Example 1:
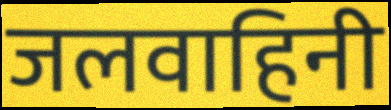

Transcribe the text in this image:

जलवाहिनी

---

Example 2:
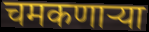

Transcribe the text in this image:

चमकणाऱ्या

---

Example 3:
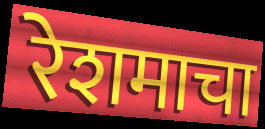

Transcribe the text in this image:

रेशमाचा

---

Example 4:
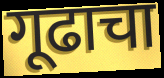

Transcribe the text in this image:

गूढाचा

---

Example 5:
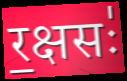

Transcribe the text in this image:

र॒क्षसः॑